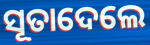
ସୂତାଦେଲେ